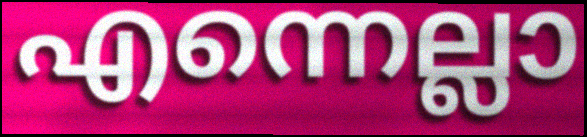
എന്നെല്ലാ